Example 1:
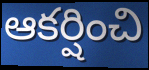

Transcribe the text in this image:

ఆకర్షించి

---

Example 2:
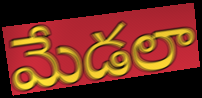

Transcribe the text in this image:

మేడలా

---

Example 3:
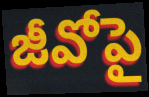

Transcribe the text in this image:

జీవోపై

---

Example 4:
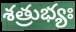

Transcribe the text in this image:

శత్రుభ్యః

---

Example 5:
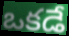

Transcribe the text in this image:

ఒకడే